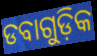
ଡବାଗୁଡ଼ିକ